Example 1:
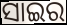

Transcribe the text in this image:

ସାଇର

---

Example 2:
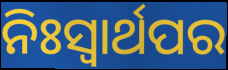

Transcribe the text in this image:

ନିଃସ୍ୱାର୍ଥପର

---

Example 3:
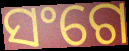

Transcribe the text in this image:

ସଂଗେ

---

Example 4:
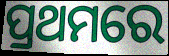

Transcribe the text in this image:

ପ୍ରଥମରେ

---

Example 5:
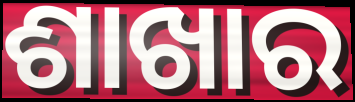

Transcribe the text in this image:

ଶାଖାର